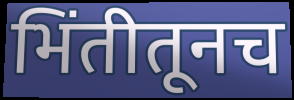
भिंतीतूनच